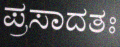
ಪ್ರಸಾದತಃ